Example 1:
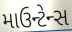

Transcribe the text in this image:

માઉન્ટેન્સ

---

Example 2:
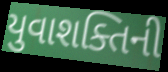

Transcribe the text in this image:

યુવાશક્તિની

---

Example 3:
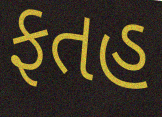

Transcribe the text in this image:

ફતહ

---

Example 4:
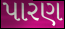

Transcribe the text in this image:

પારણ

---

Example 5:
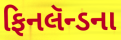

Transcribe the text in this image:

ફિનલૅન્ડના